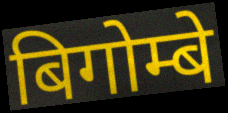
बिगोम्बे